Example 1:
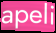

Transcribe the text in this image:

apeli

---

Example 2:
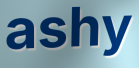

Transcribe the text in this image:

ashy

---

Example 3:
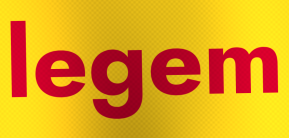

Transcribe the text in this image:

legem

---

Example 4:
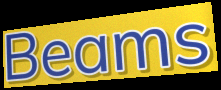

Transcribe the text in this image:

Beams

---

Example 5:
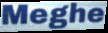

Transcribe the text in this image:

Meghe